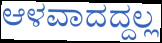
ಆಳವಾದದ್ದಲ್ಲ